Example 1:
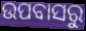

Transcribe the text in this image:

ଉପବାସରୁ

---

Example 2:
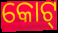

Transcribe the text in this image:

କୋଟ୍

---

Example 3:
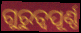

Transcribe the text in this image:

ଗୁରୁତ୍ବପୂର୍ଣ୍ଣ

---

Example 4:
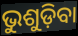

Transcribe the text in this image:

ଭୁଶୁଡ଼ିବା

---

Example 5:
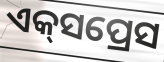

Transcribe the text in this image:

ଏକ୍‌ସପ୍ରେସ